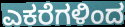
ಎಕರೆಗಳಿಂದ